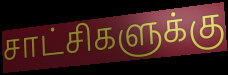
சாட்சிகளுக்கு